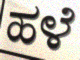
ಹಳೆ